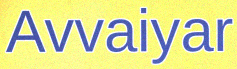
Avvaiyar